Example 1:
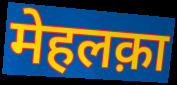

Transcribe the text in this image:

मेहलक़ा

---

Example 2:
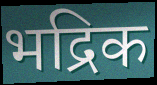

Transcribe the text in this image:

भद्रिक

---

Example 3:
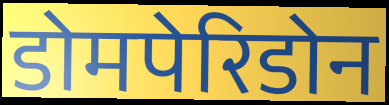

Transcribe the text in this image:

डोमपेरिडोन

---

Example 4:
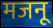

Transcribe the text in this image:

मजनू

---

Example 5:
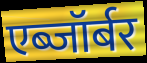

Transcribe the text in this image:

एब्जॉर्बर